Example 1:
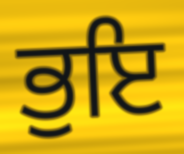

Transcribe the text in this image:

ਭੁਇ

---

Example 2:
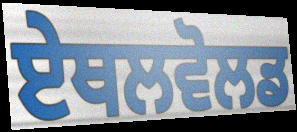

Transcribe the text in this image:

ਏਥਲਵੋਲਡ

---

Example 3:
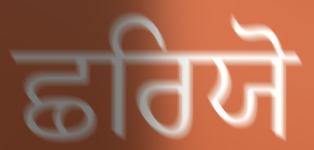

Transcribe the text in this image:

ਛਰਿਯੋ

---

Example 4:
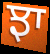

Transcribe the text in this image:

ਝਾ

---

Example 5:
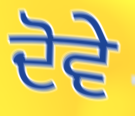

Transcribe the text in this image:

ਦੋਵੇ